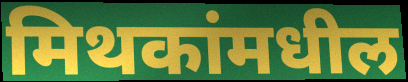
मिथकांमधील